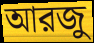
আরজু